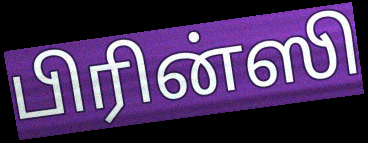
பிரின்ஸி